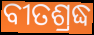
ବୀତଶ୍ରଦ୍ଧ